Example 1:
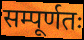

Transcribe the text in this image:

सम्पूर्णतः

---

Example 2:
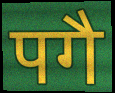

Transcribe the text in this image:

पगै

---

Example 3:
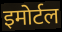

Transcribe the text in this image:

इमोर्टल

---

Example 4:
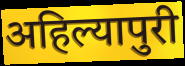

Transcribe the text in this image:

अहिल्यापुरी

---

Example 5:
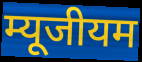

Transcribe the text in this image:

म्यूजीयम